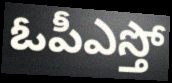
ఓపీఎస్తో